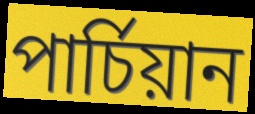
পাৰ্চিয়ান